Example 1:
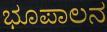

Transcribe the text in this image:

ಭೂಪಾಲನ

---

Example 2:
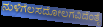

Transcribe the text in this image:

ನುಳಿಗೆಲಸದೋಲಗವಿದೆಂತೈ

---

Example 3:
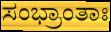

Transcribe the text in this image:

ಸಂಭ್ರಾಂತಾಃ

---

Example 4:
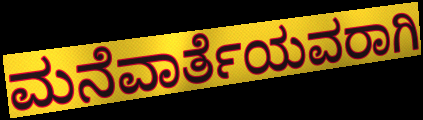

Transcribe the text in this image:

ಮನೆವಾರ್ತೆಯವರಾಗಿ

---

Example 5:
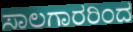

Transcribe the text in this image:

ಸಾಲಗಾರರಿಂದ